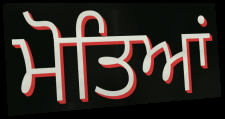
ਮੋਤਿਆਂ